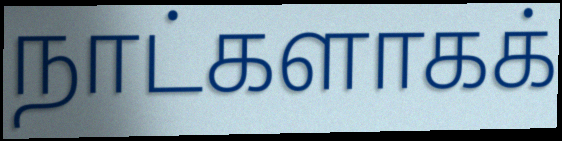
நாட்களாகக்